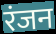
रंजन